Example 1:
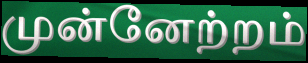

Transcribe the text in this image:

முன்னேற்றம்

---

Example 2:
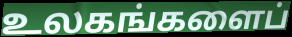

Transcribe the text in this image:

உலகங்களைப்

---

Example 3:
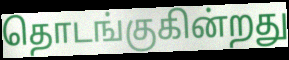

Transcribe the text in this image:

தொடங்குகின்றது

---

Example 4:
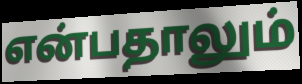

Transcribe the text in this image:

என்பதாலும்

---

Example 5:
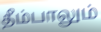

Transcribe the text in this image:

தீம்பாலும்